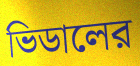
ভিডালের